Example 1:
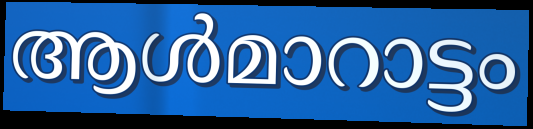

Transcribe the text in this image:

ആൾമാറാട്ടം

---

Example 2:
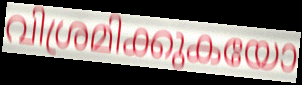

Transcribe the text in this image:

വിശ്രമിക്കുകയോ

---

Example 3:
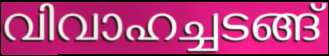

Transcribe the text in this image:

വിവാഹച്ചടങ്ങ്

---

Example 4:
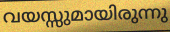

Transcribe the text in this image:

വയസ്സുമായിരുന്നു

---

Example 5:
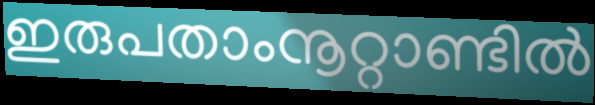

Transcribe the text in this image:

ഇരുപതാംനൂറ്റാണ്ടിൽ